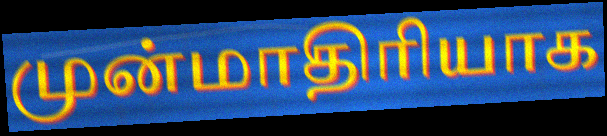
முன்மாதிரியாக